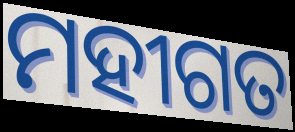
ମହୀଗତ